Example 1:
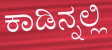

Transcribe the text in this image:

ಕಾಡಿನ್ನಲ್ಲಿ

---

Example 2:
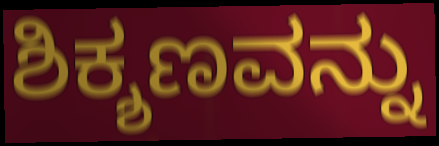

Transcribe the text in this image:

ಶಿಕ್ಶಣವನ್ನು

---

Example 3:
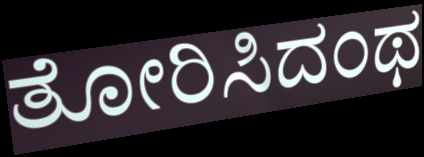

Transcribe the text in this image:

ತೋರಿಸಿದಂಥ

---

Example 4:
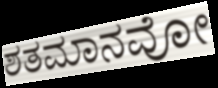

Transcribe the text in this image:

ಶತಮಾನವೋ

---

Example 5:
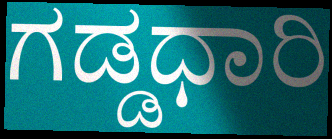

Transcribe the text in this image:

ಗಡ್ಡಧಾರಿ